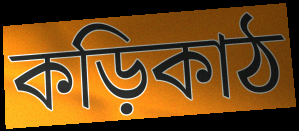
কড়িকাঠ